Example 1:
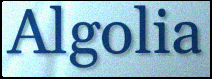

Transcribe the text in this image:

Algolia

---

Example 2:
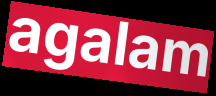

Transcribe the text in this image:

agalam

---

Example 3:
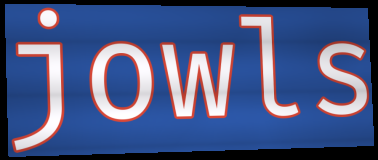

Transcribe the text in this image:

jowls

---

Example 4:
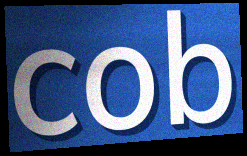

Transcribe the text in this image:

cob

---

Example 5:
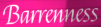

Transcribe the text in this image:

Barrenness